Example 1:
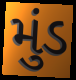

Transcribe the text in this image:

મુંડ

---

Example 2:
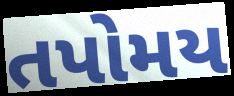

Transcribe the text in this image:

તપોમય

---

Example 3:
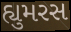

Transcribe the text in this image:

હ્યુમરસ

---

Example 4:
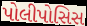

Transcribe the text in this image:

પોલીપોસિસ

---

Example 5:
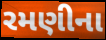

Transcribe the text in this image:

રમણીના